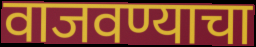
वाजवण्याचा